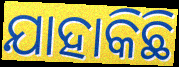
ଯାହାକିଛି